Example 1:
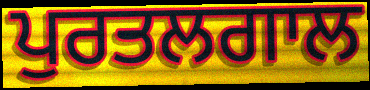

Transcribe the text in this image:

ਪੁਰਤਲਗਾਲ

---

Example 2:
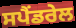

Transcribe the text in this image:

ਸਪੈਂਡਰੇਲ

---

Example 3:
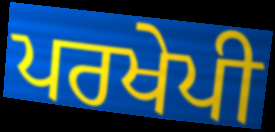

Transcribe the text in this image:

ਪਰਖੇਪੀ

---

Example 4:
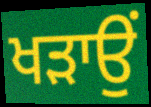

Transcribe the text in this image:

ਖੜਾਉਂ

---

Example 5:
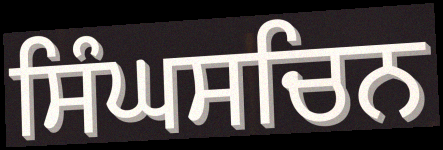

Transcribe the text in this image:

ਸਿੰਘਸਚਿਨ